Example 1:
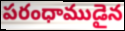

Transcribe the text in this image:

పరంధాముడైన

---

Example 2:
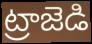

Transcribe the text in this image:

ట్రాజెడి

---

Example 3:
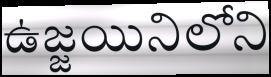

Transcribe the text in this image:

ఉజ్జయినిలోని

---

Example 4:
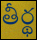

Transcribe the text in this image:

తీర్థ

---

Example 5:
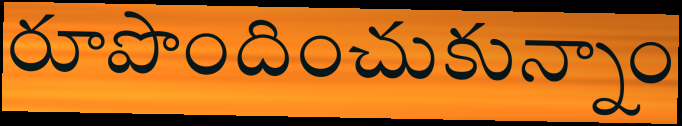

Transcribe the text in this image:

రూపొందించుకున్నాం